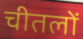
चीतलों